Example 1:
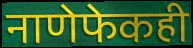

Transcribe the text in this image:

नाणेफेकही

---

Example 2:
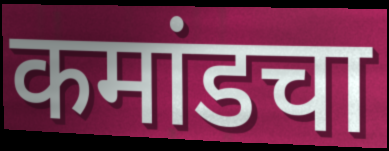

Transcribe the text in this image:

कमांडचा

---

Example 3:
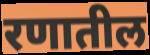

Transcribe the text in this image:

रणातील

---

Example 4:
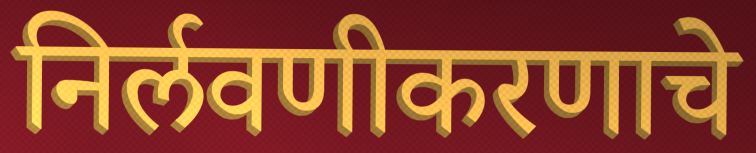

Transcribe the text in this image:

निर्लवणीकरणाचे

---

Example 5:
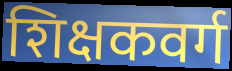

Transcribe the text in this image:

शिक्षकवर्ग